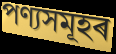
পণ্যসমূহৰ